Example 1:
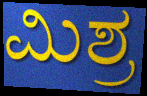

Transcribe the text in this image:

ಮಿಶ್ರ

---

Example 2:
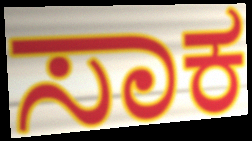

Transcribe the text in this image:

ಸಾಕ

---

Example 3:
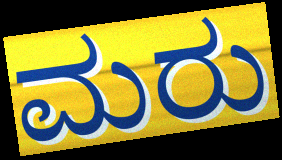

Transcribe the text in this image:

ಮರು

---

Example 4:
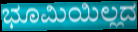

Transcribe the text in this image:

ಭೂಮಿಯಿಲ್ಲದ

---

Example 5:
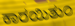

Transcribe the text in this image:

ಕಾರಯಿತುಂ